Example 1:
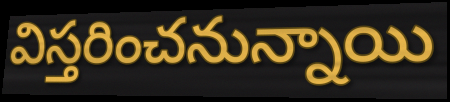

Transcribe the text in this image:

విస్తరించనున్నాయి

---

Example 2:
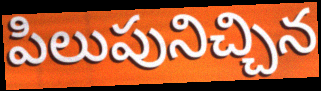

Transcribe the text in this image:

పిలుపునిచ్చిన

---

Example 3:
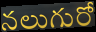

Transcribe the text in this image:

నలుగురో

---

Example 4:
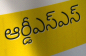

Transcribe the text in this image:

ఆర్డీఎస్ఎస్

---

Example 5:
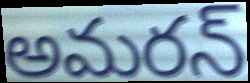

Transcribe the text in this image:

అమరన్